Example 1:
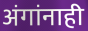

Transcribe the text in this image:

अंगांनाही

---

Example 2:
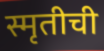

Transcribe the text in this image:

स्मृतीची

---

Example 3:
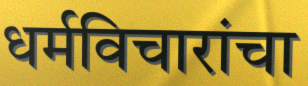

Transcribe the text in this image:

धर्मविचारांचा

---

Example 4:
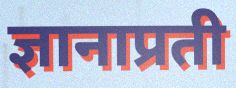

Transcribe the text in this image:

ज्ञानाप्रती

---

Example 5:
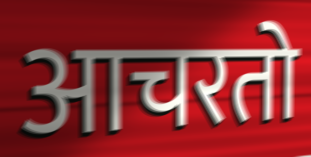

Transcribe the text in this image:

आचरतो